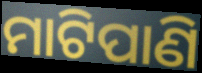
ମାଟିପାଣି